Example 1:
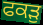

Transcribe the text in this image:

ਫਕੜੁ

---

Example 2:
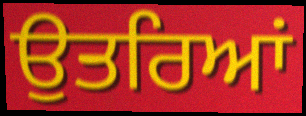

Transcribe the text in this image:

ਉਤਰਿਆਂ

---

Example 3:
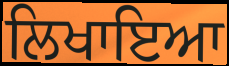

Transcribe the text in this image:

ਲਿਖਾਇਆ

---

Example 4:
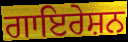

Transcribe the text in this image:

ਗਾਇਰੇਸ਼ਨ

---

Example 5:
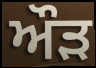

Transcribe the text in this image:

ਔਡ਼